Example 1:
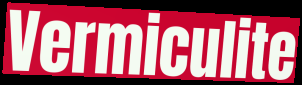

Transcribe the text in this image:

Vermiculite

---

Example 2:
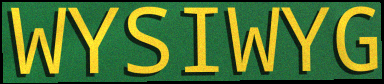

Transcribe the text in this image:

WYSIWYG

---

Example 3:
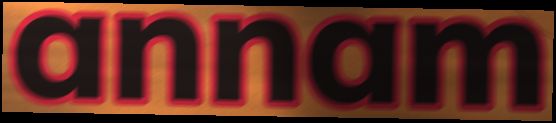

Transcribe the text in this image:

annam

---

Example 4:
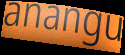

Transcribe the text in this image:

anangu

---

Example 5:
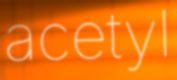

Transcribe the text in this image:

acetyl